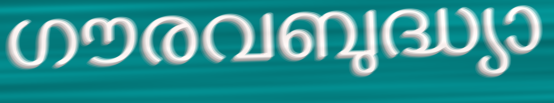
ഗൗരവബുദ്ധ്യാ